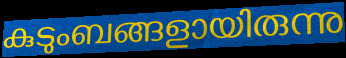
കുടുംബങ്ങളായിരുന്നു